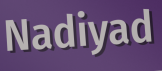
Nadiyad